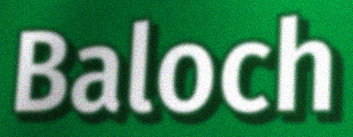
Baloch